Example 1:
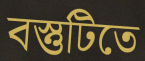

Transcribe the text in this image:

বস্তুটিতে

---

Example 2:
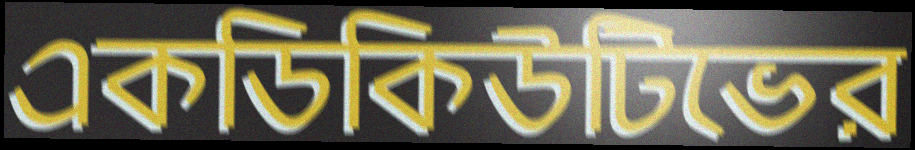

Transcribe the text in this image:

একডিকিউটিভের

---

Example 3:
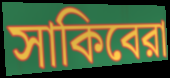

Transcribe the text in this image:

সাকিবেরা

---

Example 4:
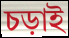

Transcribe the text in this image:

চড়াই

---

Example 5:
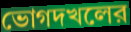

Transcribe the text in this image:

ভোগদখলের